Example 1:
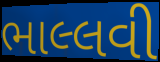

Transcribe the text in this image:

ભાલ્લવી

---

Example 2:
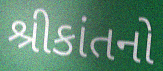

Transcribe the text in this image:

શ્રીકાંતનો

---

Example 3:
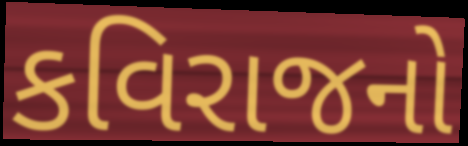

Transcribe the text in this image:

કવિરાજનો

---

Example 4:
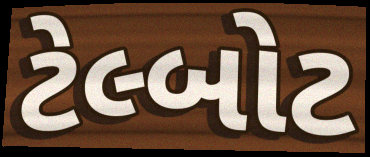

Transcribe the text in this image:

ટેલ્બોટ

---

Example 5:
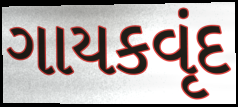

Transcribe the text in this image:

ગાયકવૃંદ